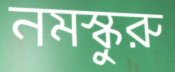
নমস্কুরু